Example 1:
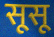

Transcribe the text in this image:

सूसू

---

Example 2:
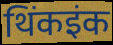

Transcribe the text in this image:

थिंकइंक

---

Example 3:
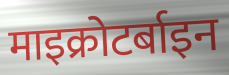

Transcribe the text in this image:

माइक्रोटर्बाइन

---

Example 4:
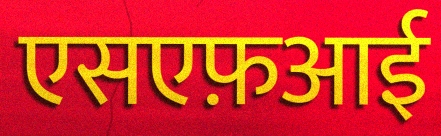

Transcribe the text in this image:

एसएफ़आई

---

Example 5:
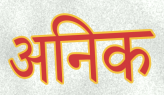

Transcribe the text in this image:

अनिक